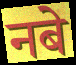
नबे